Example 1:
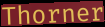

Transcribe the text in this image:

Thorner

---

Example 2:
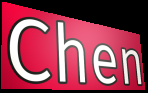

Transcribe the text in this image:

Chen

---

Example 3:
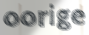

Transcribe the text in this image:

oorige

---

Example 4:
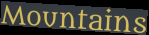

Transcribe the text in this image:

Mountains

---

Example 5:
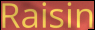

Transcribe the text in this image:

Raisin